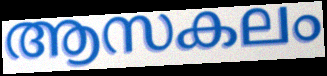
ആസകലം